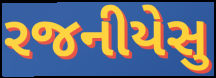
રજનીયેસુ